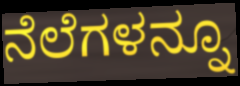
ನೆಲೆಗಳನ್ನೂ